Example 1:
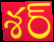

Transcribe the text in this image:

శర్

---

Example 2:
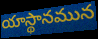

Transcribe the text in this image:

యాస్థానమున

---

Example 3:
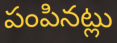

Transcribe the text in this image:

పంపినట్లు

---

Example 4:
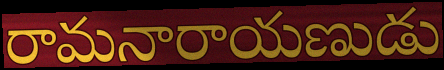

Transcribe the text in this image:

రామనారాయణుడు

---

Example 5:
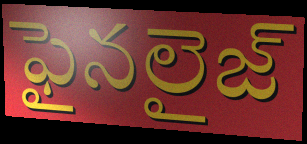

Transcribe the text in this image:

ఫైనలైజ్